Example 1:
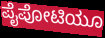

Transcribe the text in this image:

ಪೈಪೋಟಿಯೂ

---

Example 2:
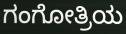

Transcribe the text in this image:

ಗಂಗೋತ್ರಿಯ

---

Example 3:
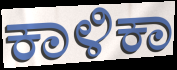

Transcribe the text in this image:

ಕಾಳಿಕಾ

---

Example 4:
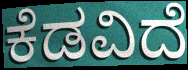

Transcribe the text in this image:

ಕೆಡವಿದೆ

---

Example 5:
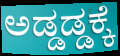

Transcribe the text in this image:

ಅಡ್ಡಡ್ಡಕ್ಕೆ